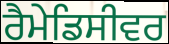
ਰੈਮੇਡਿਸੀਵਰ